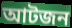
আটজন